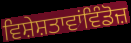
ਵਿਸ਼ੇਸ਼ਤਾਵਾਂਵਿੰਡੋਜ਼